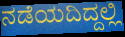
ನಡೆಯದಿದ್ದಲ್ಲಿ